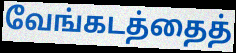
வேங்கடத்தைத்